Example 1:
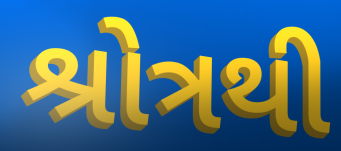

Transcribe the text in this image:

શ્રોત્રથી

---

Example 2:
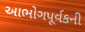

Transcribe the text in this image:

આભોગપૂર્વકની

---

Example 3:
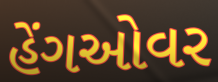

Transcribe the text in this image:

હેંગઓવર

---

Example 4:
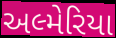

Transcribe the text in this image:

અલ્મેરિયા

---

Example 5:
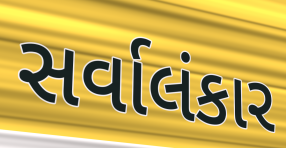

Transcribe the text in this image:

સર્વાલંકાર